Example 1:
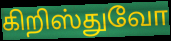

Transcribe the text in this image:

கிறிஸ்துவோ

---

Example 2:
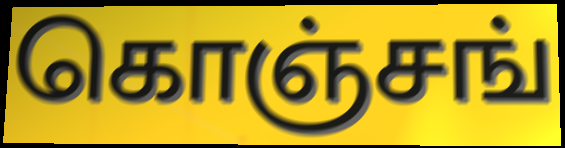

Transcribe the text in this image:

கொஞ்சங்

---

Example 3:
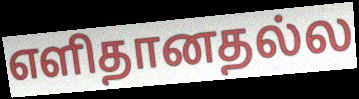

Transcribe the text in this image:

எளிதானதல்ல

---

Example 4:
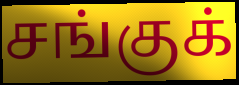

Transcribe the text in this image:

சங்குக்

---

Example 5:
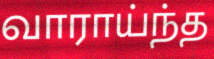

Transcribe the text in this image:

வாராய்ந்த